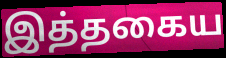
இத்தகைய